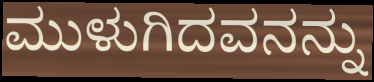
ಮುಳುಗಿದವನನ್ನು